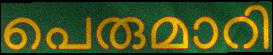
പെരുമാറി